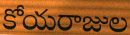
కోయరాజుల